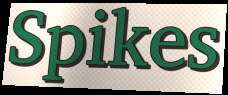
Spikes